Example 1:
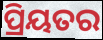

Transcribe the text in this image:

ପ୍ରିୟତର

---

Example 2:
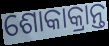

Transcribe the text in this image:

ଶୋକାକ୍ରାନ୍ତ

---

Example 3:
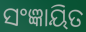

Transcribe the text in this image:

ସଂଜ୍ଞାୟିତ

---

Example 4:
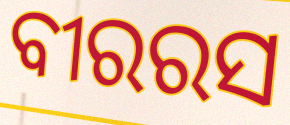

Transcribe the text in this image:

ବୀରରସ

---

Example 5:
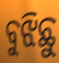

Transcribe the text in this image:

ବୁଝିଛୁ